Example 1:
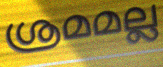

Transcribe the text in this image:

ശ്രമമല്ല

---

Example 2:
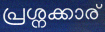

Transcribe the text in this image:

പ്രശ്നക്കാര്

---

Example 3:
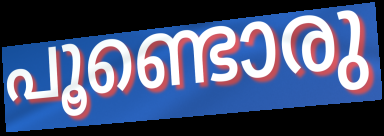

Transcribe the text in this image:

പൂണ്ടൊരു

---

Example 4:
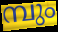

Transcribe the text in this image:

മ്പും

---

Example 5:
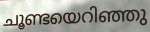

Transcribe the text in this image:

ചൂണ്ടയെറിഞ്ഞു